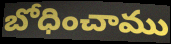
బోధించాము